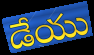
డేయు